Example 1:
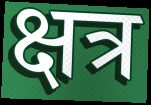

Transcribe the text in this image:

क्षत्र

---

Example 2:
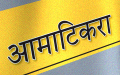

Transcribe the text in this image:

आमाटिकरा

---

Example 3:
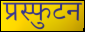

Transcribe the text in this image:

प्रस्फुटन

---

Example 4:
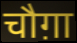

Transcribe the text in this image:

चौग़ा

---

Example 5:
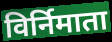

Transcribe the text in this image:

विर्निमाता